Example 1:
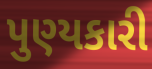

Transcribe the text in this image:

પુણ્યકારી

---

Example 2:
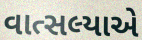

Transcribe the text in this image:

વાત્સલ્યાએ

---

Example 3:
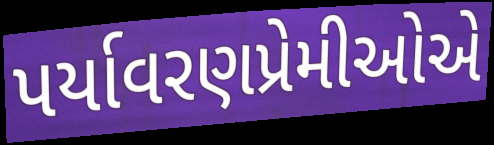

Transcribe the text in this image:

પર્યાવરણપ્રેમીઓએ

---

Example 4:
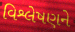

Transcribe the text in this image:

વિશ્લેષણને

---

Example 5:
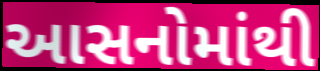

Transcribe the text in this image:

આસનોમાંથી